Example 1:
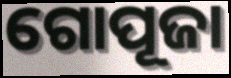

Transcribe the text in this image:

ଗୋପୂଜା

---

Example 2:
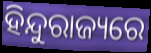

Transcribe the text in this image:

ହିନ୍ଦୁରାଜ୍ୟରେ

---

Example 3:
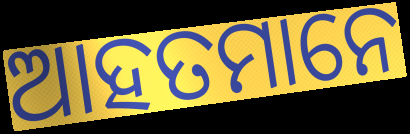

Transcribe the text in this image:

ଆହତମାନେ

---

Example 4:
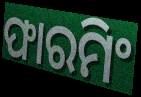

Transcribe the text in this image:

ଫାରମିଂ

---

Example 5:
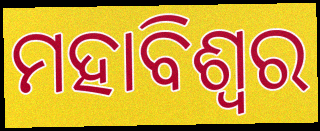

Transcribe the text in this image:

ମହାବିଶ୍ଵର